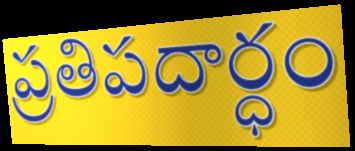
ప్రతిపదార్ధం